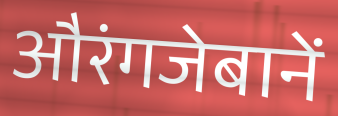
औरंगजेबानें